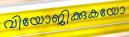
വിയോജിക്കുകയോ